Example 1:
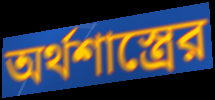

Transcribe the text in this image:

অর্থশাস্ত্রের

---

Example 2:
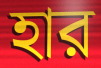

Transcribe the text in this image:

হার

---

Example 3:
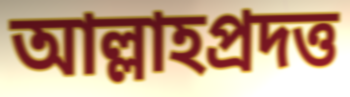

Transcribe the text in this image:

আল্লাহপ্রদত্ত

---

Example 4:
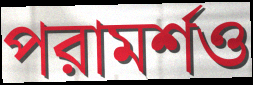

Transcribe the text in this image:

পরামর্শও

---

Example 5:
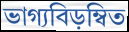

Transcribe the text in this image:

ভাগ্যবিড়ম্বিত